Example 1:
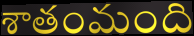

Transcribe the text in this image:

శాతంమంది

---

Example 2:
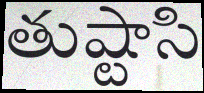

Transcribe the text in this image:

తుష్టాసి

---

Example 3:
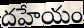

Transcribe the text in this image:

దహేయం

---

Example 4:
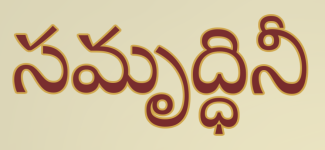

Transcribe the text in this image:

సమృద్ధినీ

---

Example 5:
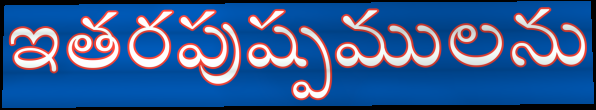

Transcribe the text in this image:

ఇతరపుష్పములను